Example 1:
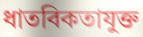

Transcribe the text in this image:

ধাতবিকতাযুক্ত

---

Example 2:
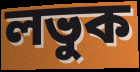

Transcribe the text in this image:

লভুক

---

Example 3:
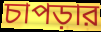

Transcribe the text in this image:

চাপড়ার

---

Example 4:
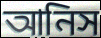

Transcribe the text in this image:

আনিস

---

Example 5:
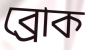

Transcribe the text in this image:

ব্রোক